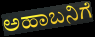
ಅಹಾಬನಿಗೆ